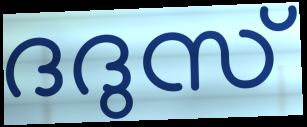
ദദുസ്